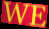
WE